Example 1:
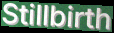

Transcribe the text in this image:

Stillbirth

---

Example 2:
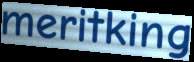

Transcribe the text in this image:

meritking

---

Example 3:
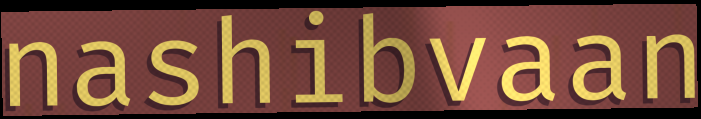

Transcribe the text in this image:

nashibvaan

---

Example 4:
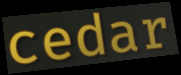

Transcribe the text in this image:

cedar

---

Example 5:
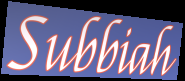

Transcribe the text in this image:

Subbiah